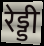
रेड्डी